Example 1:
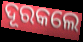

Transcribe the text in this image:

ଦୂରକଲେ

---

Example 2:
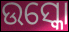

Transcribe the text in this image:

ଉସ୍କୋ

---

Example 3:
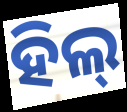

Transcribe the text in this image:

ହିଲ୍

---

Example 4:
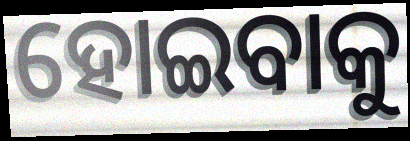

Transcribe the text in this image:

ହୋଇବାକୁ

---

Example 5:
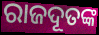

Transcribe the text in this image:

ରାଜଦୂତଙ୍କ